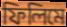
ফিলিমে